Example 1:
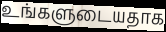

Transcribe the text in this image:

உங்களுடையதாக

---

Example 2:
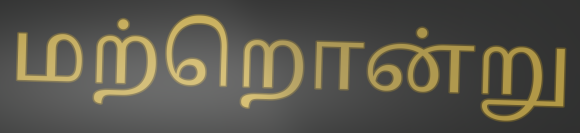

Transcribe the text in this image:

மற்றொன்று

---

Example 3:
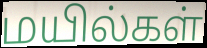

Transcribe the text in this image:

மயில்கள்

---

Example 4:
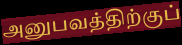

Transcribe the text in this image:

அனுபவத்திற்குப்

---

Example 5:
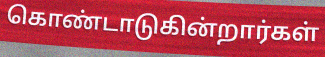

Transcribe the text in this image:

கொண்டாடுகின்றார்கள்